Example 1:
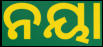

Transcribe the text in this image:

ନୟା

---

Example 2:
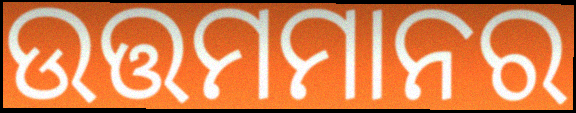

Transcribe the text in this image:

ଉତ୍ତମମାନର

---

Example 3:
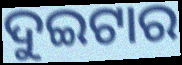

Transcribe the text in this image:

ଦୁଇଟାର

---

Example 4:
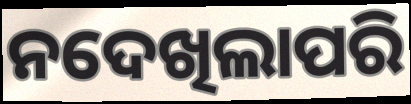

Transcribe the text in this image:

ନଦେଖିଲାପରି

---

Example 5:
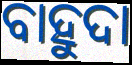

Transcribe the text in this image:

ବାହୁଦା